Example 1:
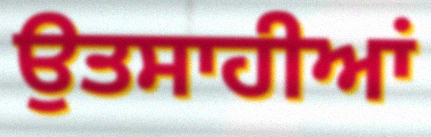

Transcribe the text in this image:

ਉਤਸਾਹੀਆਂ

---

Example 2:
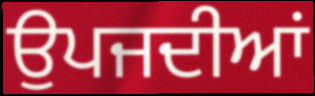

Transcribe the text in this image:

ਉਪਜਦੀਆਂ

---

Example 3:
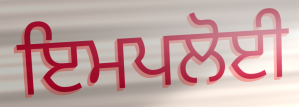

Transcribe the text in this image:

ਇਮਪਲੋਈ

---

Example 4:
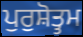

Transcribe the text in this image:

ਪੁਰੁਸ਼ੋਤ੍ਤਮ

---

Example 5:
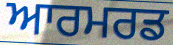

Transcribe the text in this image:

ਆਰਮਰਡ